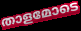
താളമോടെ